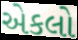
એકલો